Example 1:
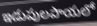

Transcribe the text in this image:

ఇడుపులపాయలో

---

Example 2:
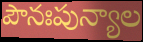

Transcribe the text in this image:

పౌనఃపున్యాల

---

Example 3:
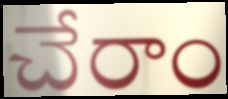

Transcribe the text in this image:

చేరాం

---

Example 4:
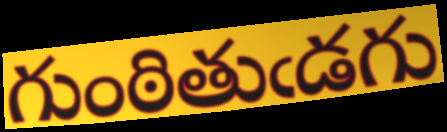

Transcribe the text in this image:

గుంఠితుఁడగు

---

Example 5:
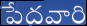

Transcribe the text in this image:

పేదవారి